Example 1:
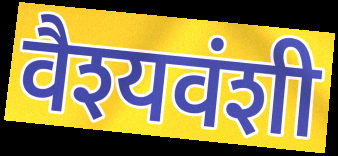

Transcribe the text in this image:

वैश्यवंशी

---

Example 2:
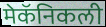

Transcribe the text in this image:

मेकॅनिकली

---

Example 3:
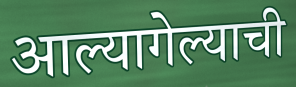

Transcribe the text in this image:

आल्यागेल्याची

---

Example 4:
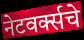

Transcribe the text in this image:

नेटवर्क्सचे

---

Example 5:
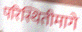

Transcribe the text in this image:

परिस्थितीमागे